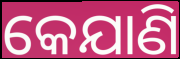
କେଯାଣି